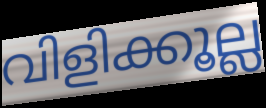
വിളിക്കൂല്ല